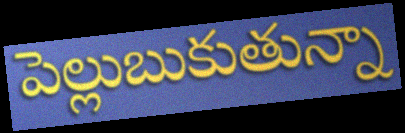
పెల్లుబుకుతున్నా